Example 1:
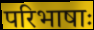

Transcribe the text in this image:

परिभाषाः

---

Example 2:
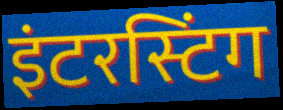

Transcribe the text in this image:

इंटरस्टिंग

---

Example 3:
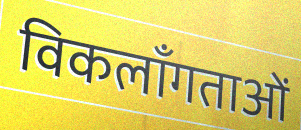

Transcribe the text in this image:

विकलाँगताओं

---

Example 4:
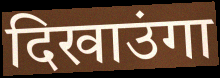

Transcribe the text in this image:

दिखाउंगा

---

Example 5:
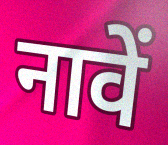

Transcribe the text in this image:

नावें